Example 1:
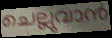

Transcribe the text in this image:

ചെല്ലുവാൻ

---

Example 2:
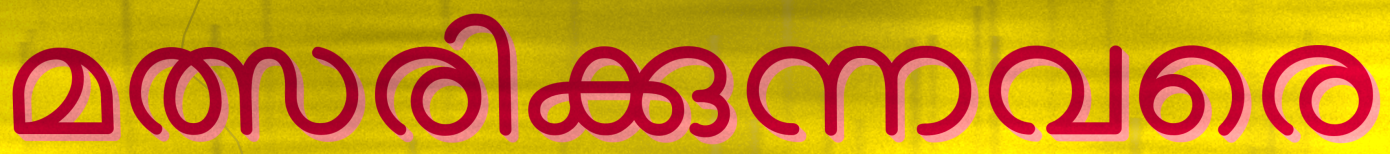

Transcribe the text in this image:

മത്സരിക്കുന്നവരെ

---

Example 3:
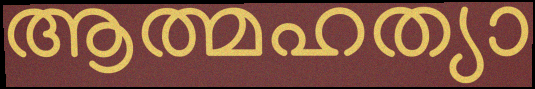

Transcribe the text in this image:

ആത്മഹത്യാ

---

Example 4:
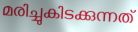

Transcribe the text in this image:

മരിച്ചുകിടക്കുന്നത്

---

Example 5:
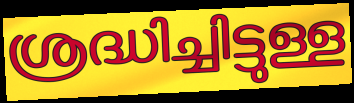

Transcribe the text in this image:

ശ്രദ്ധിച്ചിട്ടുള്ള